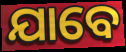
ଯାବେ